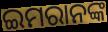
ଇମରାନଙ୍କ